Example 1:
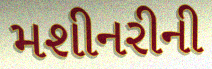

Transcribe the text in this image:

મશીનરીની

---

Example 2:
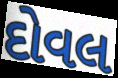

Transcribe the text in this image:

દોવલ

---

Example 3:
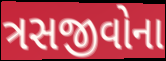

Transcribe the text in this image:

ત્રસજીવોના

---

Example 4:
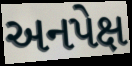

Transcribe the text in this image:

અનપેક્ષ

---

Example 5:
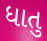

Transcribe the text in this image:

ધાતુ